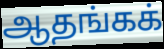
ஆதங்கக்